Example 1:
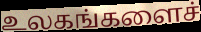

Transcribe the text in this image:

உலகங்களைச்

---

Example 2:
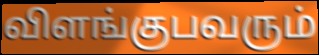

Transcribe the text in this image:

விளங்குபவரும்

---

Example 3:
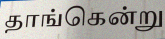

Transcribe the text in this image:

தாங்கென்று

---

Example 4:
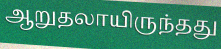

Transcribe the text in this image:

ஆறுதலாயிருந்தது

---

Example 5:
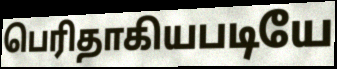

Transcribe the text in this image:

பெரிதாகியபடியே